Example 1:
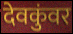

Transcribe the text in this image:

देवकुंवर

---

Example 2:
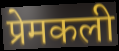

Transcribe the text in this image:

प्रेमकली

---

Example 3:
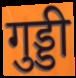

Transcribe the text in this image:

गुड्डी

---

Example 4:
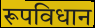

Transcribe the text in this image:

रूपविधान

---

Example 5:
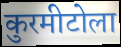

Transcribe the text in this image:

कुरमीटोला